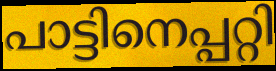
പാട്ടിനെപ്പറ്റി